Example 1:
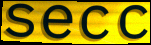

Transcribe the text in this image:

secc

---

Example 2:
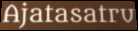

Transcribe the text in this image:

Ajatasatru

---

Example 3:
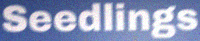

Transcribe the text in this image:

Seedlings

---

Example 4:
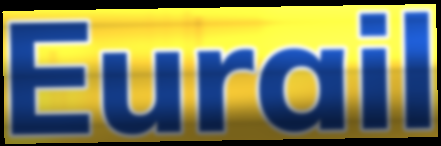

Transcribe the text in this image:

Eurail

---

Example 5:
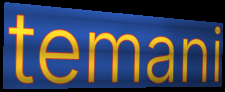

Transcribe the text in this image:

temani